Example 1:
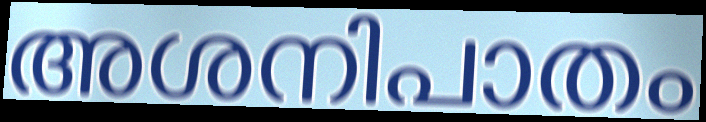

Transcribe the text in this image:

അശനിപാതം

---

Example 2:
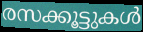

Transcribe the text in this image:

രസക്കൂട്ടുകൾ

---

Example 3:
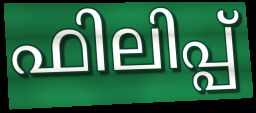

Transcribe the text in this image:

ഫിലിപ്പ്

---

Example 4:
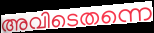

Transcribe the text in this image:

അവിടെതന്നെ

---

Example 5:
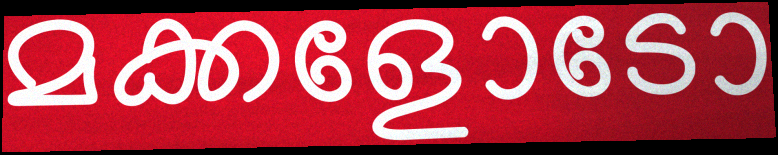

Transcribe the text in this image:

മക്കളോടോ